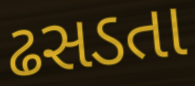
ઢસડતા